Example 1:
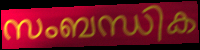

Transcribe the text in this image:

സംബന്ധിക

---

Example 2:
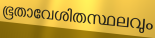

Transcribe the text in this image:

ഭൂതാവേശിതസ്ഥലവും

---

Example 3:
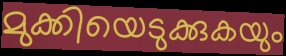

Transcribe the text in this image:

മുക്കിയെടുക്കുകയും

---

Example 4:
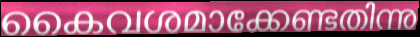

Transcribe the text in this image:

കൈവശമാക്കേണ്ടതിന്നു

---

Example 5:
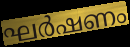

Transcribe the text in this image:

ഘർഷണം